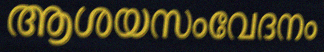
ആശയസംവേദനം